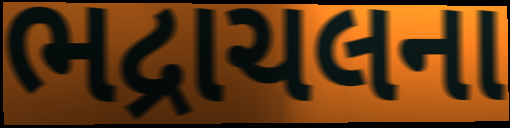
ભદ્રાચલના